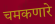
चमकणारे